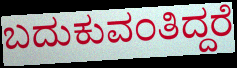
ಬದುಕುವಂತಿದ್ದರೆ